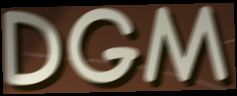
DGM